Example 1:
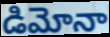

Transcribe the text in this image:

డిమోనా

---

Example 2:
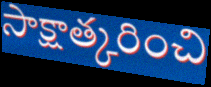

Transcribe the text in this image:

సాక్షాత్కరించి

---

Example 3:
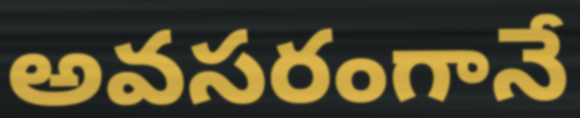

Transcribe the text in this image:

అవసరంగానే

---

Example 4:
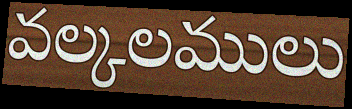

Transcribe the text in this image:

వల్కలములు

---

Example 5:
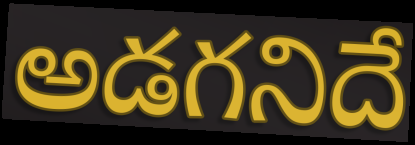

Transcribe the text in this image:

అడగనిదే